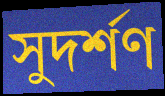
সুদর্শণ